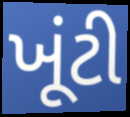
ખૂંટી